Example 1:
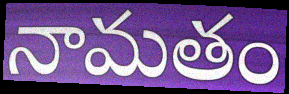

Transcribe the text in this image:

నామతం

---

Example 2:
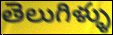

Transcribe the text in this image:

తెలుగిళ్ళు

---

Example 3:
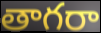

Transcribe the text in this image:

తాగరా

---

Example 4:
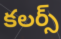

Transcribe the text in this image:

కలర్స్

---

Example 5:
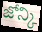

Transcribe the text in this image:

జోన్కి